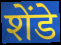
शेंडे